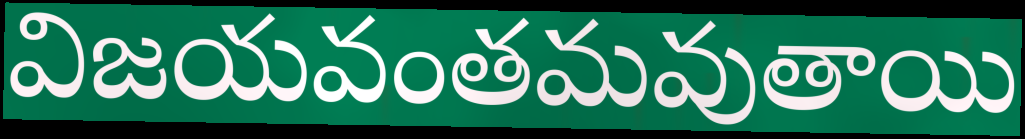
విజయవంతమవుతాయి